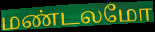
மண்டலமோ